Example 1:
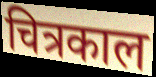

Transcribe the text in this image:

चित्रकाल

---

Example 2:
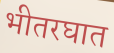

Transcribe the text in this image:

भीतरघात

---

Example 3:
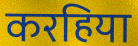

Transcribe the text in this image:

करहिया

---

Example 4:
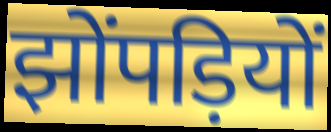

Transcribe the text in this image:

झोंपड़ियों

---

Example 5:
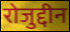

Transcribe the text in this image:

रोजुद्दीन